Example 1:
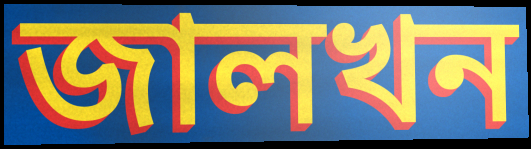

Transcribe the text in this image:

জালখন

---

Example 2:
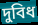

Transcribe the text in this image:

দুবিধ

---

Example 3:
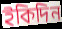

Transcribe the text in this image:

ইকিদিন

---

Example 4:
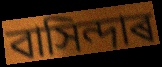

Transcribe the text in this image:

বাসিন্দাৰ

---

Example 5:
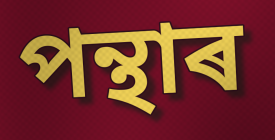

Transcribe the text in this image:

পন্থাৰ